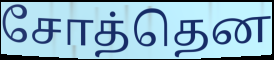
சோத்தென